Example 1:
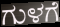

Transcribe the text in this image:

ಗುಳಗೆ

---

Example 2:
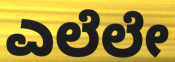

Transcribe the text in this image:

ಎಲೆಲೇ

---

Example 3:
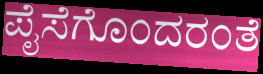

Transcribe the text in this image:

ಪೈಸೆಗೊಂದರಂತೆ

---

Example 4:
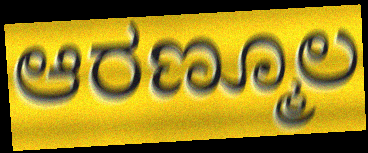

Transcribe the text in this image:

ಆರಣ್ಮೂಲ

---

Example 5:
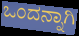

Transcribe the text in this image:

ಒಂದನ್ನಾಗಿ